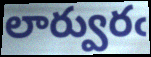
లార్వురఁ